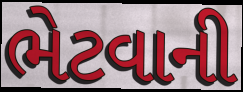
ભેટવાની